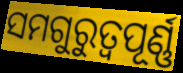
ସମଗୁରୁତ୍ଵପୂର୍ଣ୍ଣ